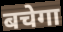
बचेगा